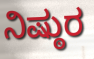
ನಿಷ್ಠುರ